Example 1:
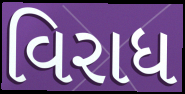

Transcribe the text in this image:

વિરાધ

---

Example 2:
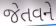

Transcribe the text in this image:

જેતવને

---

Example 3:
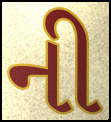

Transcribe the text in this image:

ની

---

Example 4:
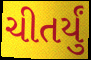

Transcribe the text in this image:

ચીતર્યું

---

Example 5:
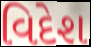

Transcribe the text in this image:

વિદેશ